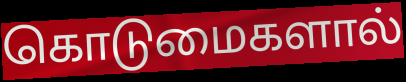
கொடுமைகளால்